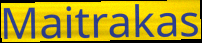
Maitrakas